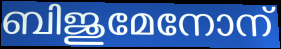
ബിജുമേനോന്